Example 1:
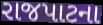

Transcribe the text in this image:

રાજપાટના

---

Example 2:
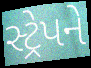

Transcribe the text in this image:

સ્ટ્રેપને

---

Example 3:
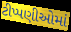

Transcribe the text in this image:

ટીપ્પણીઓમાં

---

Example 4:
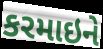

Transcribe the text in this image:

કરમાઇને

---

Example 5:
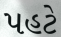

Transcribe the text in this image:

પહટે